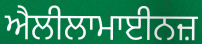
ਐਲੀਲਾਮਾਈਨਜ਼